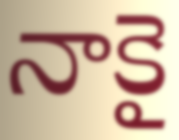
నాకై